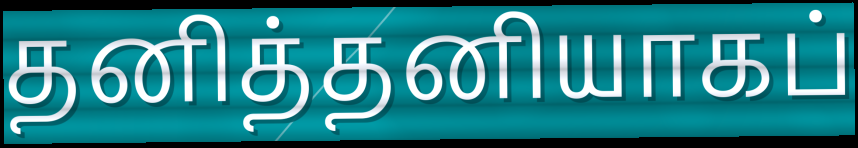
தனித்தனியாகப்